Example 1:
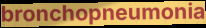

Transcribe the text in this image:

bronchopneumonia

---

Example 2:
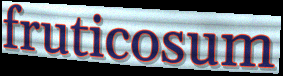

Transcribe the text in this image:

fruticosum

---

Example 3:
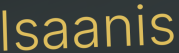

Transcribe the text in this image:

Isaanis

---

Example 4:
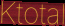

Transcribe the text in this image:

Ktotal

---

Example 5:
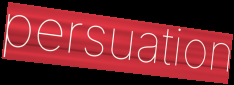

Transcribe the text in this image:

persuation